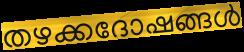
തഴക്കദോഷങ്ങൾ